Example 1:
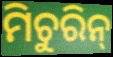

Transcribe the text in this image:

ମିଚୁରିନ୍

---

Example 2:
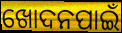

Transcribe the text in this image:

ଖୋଦନପାଇଁ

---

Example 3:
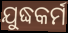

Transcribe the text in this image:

ଯୁଦ୍ଧକର୍ମ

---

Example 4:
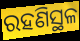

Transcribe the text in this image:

ରହଣିସ୍ଥଳ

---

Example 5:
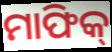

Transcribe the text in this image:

ମାଫିକ୍